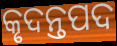
କୃଦନ୍ତପଦ